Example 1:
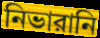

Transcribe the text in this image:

নিভারানি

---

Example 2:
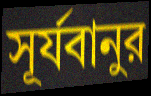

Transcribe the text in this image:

সূর্যবানুর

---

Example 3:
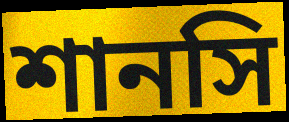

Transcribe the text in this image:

শানসি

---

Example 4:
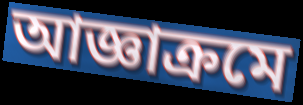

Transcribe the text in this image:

আজ্ঞাক্রমে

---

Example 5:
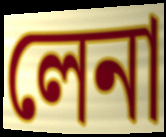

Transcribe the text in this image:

লেনা